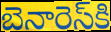
బెనారెస్‌కి